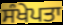
ਸੰਖੇਪਤਾ